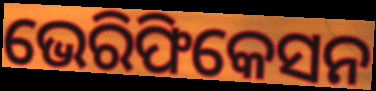
ଭେରିଫିକେସନ